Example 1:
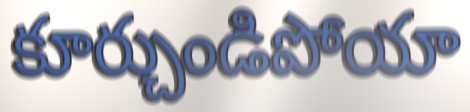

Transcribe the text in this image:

కూర్చుండిపోయా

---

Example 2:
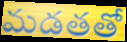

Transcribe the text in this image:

మడతతో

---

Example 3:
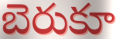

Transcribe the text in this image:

బెరుకూ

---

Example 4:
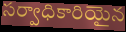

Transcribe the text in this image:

సర్వాధికారియైన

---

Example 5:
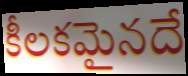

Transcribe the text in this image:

కీలకమైనదే